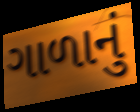
ગાળાનું